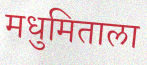
मधुमिताला